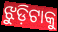
ଝୁଡ଼ିଟାକୁ